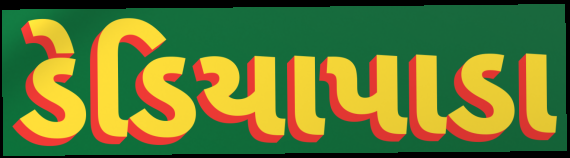
ડેડિયાપાડા